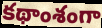
కథాంశంగా